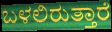
ಬಳಲಿರುತ್ತಾರೆ